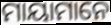
ମାୟାମାନେ